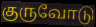
குருவோடு